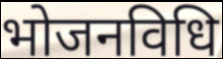
भोजनविधि